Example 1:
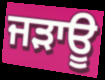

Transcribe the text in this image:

ਜੜਾਊ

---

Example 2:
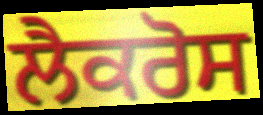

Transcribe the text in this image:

ਲੈਕਰੋਸ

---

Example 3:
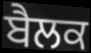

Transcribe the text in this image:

ਬੈਲਕ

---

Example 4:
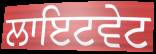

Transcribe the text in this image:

ਲਾਇਟਵੇਟ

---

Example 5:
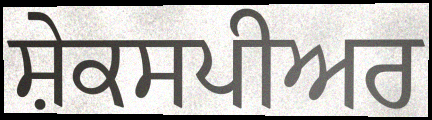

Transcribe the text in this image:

ਸ਼ੇਕਸਪੀਅਰ